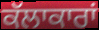
ਕੱਲਾਕਾਰਾਂ